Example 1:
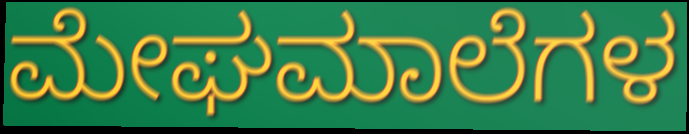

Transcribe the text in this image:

ಮೇಘಮಾಲೆಗಳ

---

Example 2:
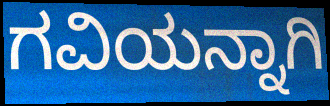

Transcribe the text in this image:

ಗವಿಯನ್ನಾಗಿ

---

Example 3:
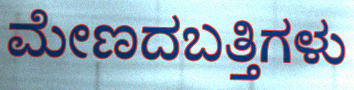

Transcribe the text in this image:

ಮೇಣದಬತ್ತಿಗಳು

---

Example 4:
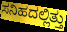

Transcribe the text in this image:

ಸನಿಹದಲ್ಲಿತ್ತು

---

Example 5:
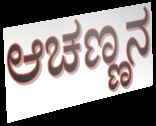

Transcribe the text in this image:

ಆಚಣ್ಣನ